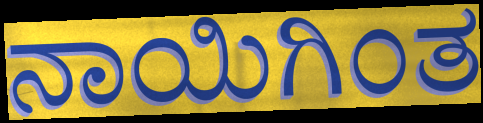
ನಾಯಿಗಿಂತ